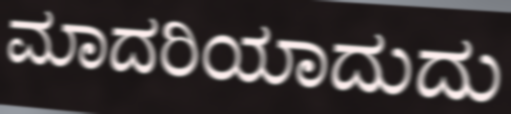
ಮಾದರಿಯಾದುದು